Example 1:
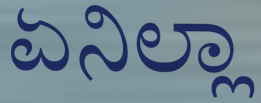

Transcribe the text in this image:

ಏನಿಲ್ಲಾ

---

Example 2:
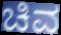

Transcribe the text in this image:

ಚಿವ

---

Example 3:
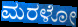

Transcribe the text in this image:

ಮರಳೋ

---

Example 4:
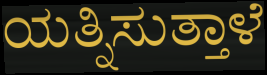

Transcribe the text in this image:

ಯತ್ನಿಸುತ್ತಾಳೆ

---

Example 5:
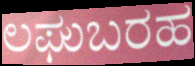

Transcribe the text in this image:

ಲಘುಬರಹ